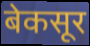
बेकसूर